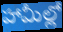
హామీల్లో